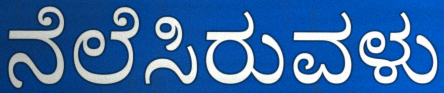
ನೆಲೆಸಿರುವಳು